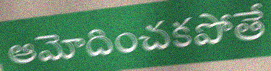
ఆమోదించకపోతే